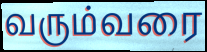
வரும்வரை